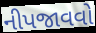
નીપજાવવો